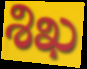
శిఖ